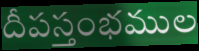
దీపస్తంభముల